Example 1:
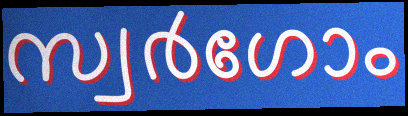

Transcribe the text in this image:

സ്വർഗോം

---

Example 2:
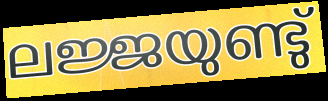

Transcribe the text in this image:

ലജ്ജയുണ്ടു്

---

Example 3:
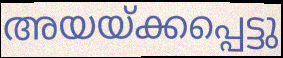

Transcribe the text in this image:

അയയ്ക്കപ്പെട്ടു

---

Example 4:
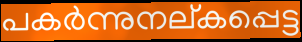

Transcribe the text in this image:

പകർന്നുനല്കപ്പെട്ട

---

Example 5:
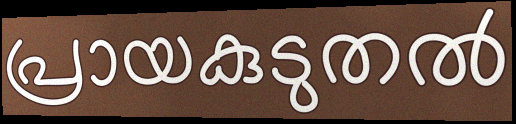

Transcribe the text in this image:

പ്രായകുടുതൽ